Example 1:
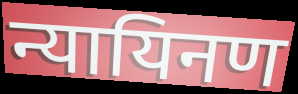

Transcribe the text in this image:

न्यायिनण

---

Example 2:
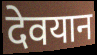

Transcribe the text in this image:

देवयान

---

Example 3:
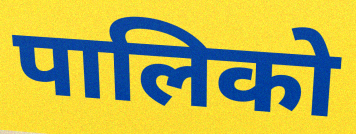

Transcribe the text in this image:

पालिको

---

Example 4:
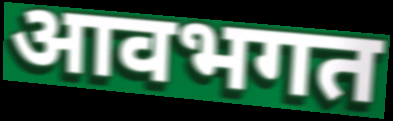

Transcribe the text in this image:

आवभगत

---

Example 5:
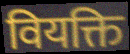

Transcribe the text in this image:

वियक्ति